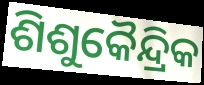
ଶିଶୁକୈନ୍ଦ୍ରିକ